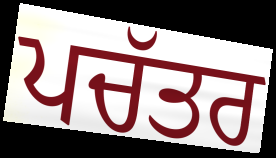
ਪਚੱਤਰ